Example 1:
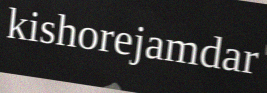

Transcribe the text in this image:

kishorejamdar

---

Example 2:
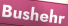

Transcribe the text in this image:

Bushehr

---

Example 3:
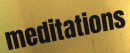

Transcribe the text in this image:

meditations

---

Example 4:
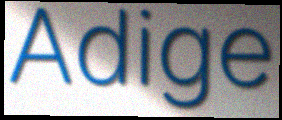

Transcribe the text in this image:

Adige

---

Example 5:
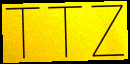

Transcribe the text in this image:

TTZ